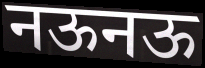
नऊनऊ